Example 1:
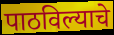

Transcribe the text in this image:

पाठविल्याचे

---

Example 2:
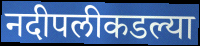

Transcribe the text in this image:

नदीपलीकडल्या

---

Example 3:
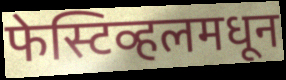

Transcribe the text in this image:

फेस्टिव्हलमधून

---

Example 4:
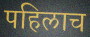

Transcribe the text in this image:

पहिलाच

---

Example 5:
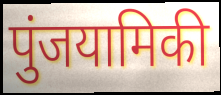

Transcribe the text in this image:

पुंजयामिकी